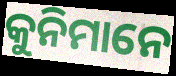
କୁନିମାନେ